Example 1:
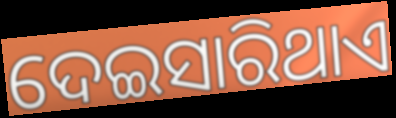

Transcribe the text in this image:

ଦେଇସାରିଥାଏ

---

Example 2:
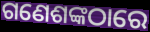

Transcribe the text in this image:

ଗଣେଶଙ୍କଠାରେ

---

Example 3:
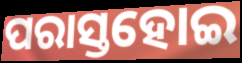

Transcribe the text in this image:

ପରାସ୍ତହୋଇ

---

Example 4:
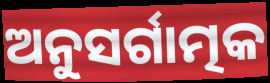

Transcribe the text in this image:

ଅନୁସର୍ଗାତ୍ମକ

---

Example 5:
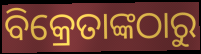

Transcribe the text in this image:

ବିକ୍ରେତାଙ୍କଠାରୁ